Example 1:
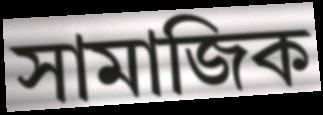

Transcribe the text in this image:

সামাজিক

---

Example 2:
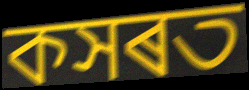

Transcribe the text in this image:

কসৰত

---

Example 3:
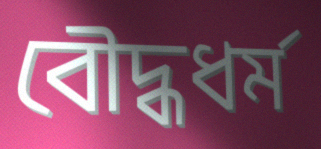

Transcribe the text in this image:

বৌদ্ধধৰ্ম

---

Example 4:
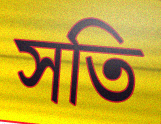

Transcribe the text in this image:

সতি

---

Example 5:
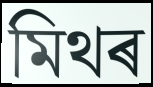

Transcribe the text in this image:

মিথৰ